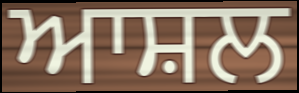
ਆਸ਼ਲ